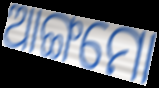
ଆଙ୍ଗମୋ